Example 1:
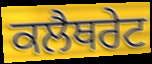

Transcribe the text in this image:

ਕਲੈਥਰੇਟ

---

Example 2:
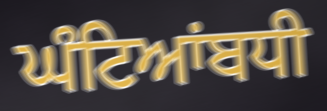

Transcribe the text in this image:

ਘੰਟਿਆਂਬਧੀ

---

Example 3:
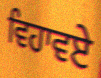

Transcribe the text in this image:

ਵਿਹਾਵਏ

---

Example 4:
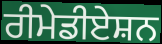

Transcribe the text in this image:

ਰੀਮੇਡੀਏਸ਼ਨ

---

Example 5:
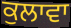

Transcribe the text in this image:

ਕੁਲਾਵਾ